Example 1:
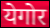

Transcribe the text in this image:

येगोर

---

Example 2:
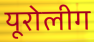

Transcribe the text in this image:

यूरोलीग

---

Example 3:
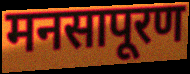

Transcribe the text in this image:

मनसापूरण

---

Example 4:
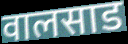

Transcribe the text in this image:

वालसाड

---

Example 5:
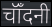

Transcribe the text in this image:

चॉँदनी